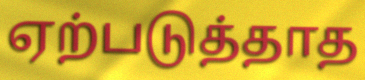
ஏற்படுத்தாத